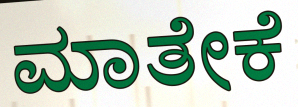
ಮಾತೇಕೆ